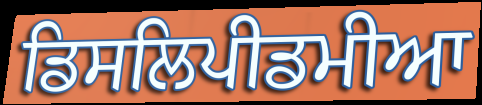
ਡਿਸਲਿਪੀਡਮੀਆ